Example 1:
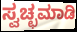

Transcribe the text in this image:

ಸ್ವಚ್ಛಮಾಡಿ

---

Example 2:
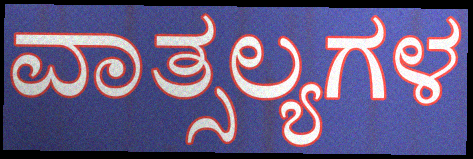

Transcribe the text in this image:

ವಾತ್ಸಲ್ಯಗಳ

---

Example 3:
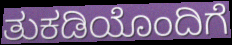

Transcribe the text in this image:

ತುಕಡಿಯೊಂದಿಗೆ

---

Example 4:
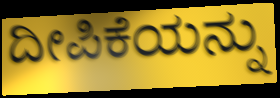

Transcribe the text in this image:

ದೀಪಿಕೆಯನ್ನು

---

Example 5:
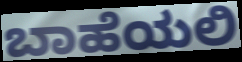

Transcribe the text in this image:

ಬಾಹೆಯಲಿ